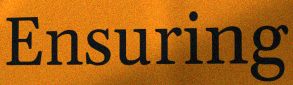
Ensuring